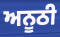
ਅਨੂਠੀ